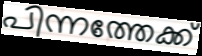
പിന്നത്തേക്ക്